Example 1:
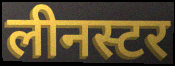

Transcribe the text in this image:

लीनस्टर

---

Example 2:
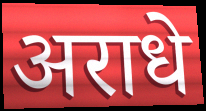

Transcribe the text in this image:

अराधे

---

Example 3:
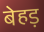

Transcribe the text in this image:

बेहड़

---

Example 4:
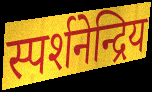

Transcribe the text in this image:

स्पर्शनेन्द्रिय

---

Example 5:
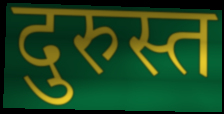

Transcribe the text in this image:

दुरुस्त